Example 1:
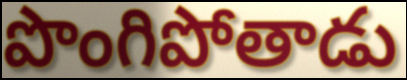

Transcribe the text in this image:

పొంగిపోతాడు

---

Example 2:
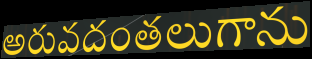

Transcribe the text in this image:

అరువదంతలుగాను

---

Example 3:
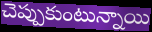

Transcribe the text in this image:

చెప్పుకుంటున్నాయి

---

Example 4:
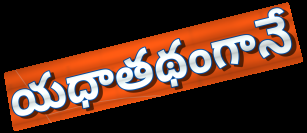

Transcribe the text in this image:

యధాతథంగానే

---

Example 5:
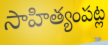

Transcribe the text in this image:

సాహిత్యంపట్ల